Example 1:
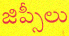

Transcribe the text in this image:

జిప్సీలు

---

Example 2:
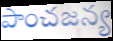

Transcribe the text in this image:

పాంచజన్య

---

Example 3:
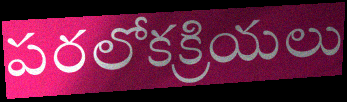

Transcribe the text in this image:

పరలోకక్రియలు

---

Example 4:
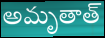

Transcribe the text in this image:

అమృతాత్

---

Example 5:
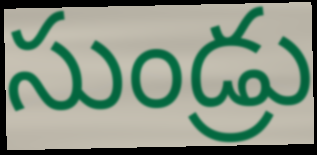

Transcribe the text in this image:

సుండ్రు